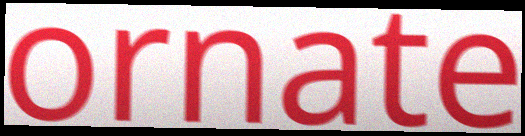
ornate